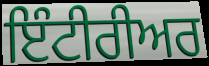
ਇੰਟੀਰੀਅਰ